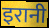
इरानी